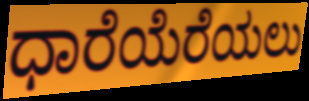
ಧಾರೆಯೆರೆಯಲು